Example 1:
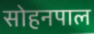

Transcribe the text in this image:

सोहनपाल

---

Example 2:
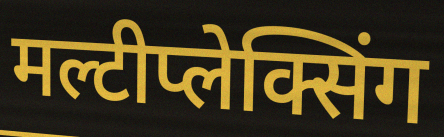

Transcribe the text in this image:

मल्टीप्लेक्सिंग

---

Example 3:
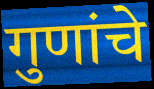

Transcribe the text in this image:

गुणांचे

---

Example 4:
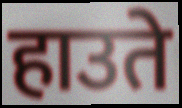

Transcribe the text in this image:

हाउते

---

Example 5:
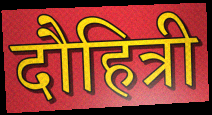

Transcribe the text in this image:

दौहित्री